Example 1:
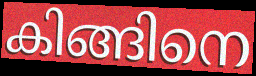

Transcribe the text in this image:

കിങ്ങിനെ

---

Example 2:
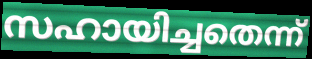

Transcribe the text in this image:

സഹായിച്ചതെന്ന്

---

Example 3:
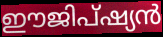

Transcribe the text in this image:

ഈജിപ്ഷ്യൻ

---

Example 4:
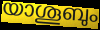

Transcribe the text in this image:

യാശൂബും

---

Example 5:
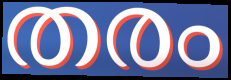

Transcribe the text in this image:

തരം